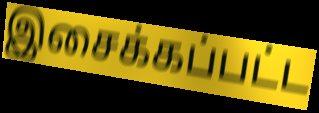
இசைக்கப்பட்ட